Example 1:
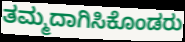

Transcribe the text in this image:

ತಮ್ಮದಾಗಿಸಿಕೊಂಡರು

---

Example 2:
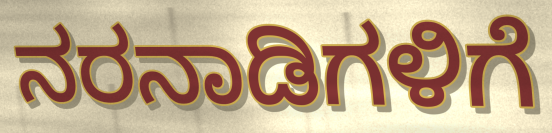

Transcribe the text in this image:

ನರನಾಡಿಗಳಿಗೆ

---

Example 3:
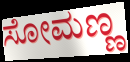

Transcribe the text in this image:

ಸೋಮಣ್ಣ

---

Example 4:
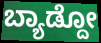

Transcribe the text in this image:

ಬ್ಯಾಡ್ದೋ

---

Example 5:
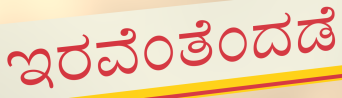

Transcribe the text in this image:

ಇರವೆಂತೆಂದಡೆ